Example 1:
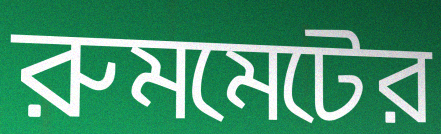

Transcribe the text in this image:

রুমমেটের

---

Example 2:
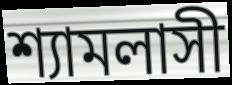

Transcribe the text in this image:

শ্যামলাসী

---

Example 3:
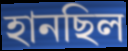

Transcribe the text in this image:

হানছিল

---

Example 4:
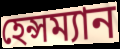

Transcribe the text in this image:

হেন্সম্যান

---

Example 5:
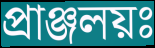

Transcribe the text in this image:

প্রাঞ্জলয়ঃ